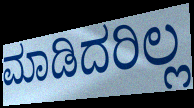
ಮಾಡಿದರಿಲ್ಲ